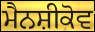
ਮੈਨਸ਼ੀਕੋਵ